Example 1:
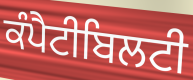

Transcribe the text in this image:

ਕੰਪੈਟੀਬਿਲਟੀ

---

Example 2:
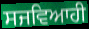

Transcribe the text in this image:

ਸਜਵਿਆਹੀ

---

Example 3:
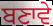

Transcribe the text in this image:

ਬਣਾਵੇ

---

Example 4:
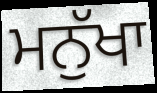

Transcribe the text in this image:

ਮਨੁੱਖਾ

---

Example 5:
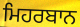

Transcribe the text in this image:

ਮਿਹਰਬਾਨ